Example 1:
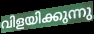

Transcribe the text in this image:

വിളയിക്കുന്നു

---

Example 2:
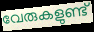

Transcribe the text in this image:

വേരുകളുണ്ട്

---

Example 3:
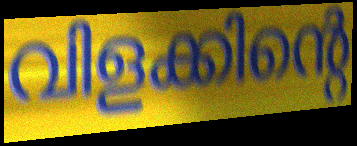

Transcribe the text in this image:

വിളക്കിന്റെ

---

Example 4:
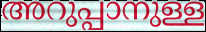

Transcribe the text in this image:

അറുപ്പാനുള്ള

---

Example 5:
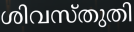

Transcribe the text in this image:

ശിവസ്തുതി